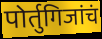
पोर्तुगिजांचं